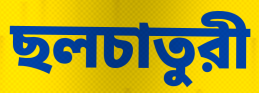
ছলচাতুরী